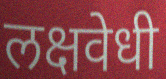
लक्षवेधी